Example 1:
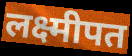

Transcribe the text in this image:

लक्ष्मीपत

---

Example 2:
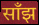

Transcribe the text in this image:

साँझ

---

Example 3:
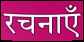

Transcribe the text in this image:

रचनाएँ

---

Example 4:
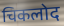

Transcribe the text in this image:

चिकलोद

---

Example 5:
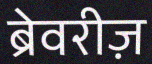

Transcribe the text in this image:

ब्रेवरीज़